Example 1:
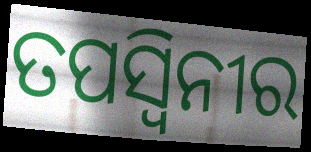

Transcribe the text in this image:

ତପସ୍ୱିନୀର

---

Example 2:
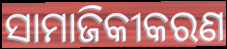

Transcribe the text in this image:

ସାମାଜିକୀକରଣ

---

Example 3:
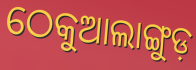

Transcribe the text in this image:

ଠେକୁଆଲାଙ୍ଗୁଡ଼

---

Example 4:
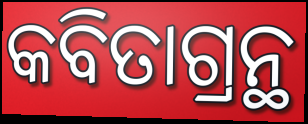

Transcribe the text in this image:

କବିତାଗ୍ରନ୍ଥ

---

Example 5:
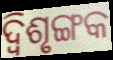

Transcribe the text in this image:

ଦ୍ବିଶୃଙ୍ଗକ